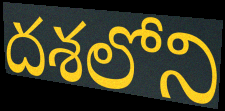
దశలోని